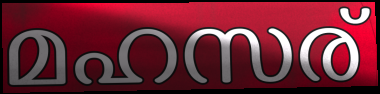
മഹസര്